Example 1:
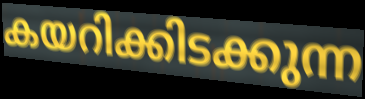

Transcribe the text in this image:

കയറിക്കിടക്കുന്ന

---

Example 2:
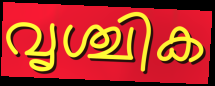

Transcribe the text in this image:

വൃശ്ചിക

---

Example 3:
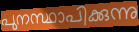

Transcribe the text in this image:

പുനസ്ഥാപിക്കുന്നു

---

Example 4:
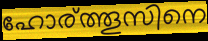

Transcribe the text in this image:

ഹോര്ത്തൂസിനെ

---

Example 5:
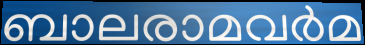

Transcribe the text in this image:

ബാലരാമവർമ